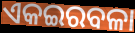
ଏକଇରବଳା